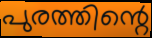
പുരത്തിന്റെ